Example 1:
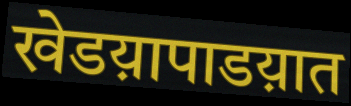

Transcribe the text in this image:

खेडय़ापाडय़ात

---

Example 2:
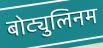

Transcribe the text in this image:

बोट्युलिनम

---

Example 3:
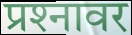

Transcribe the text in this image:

प्रश्‍नावर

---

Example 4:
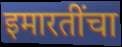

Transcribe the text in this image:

इमारतींचा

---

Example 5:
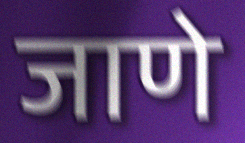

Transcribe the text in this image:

जाणे